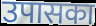
उपासका